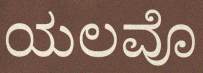
ಯಲವೊ